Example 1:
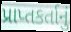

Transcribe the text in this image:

પ્રાપ્તકર્તાનું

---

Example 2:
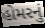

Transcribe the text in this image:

હોમરનું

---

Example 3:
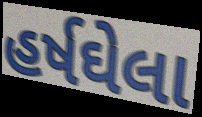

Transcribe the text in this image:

હર્ષઘેલા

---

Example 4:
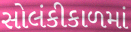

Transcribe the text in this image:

સોલંકીકાળમાં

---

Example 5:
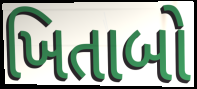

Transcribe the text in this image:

ખિતાબો